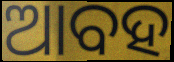
ଆବହ